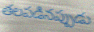
తలపడినప్పుడు